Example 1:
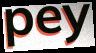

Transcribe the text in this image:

pey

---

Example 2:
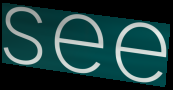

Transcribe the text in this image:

see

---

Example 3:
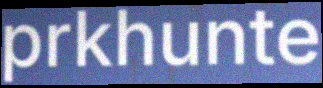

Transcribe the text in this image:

prkhunte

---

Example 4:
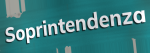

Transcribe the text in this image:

Soprintendenza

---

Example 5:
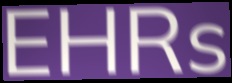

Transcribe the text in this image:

EHRs